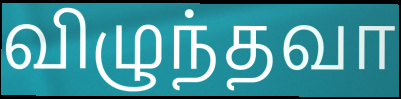
விழுந்தவா